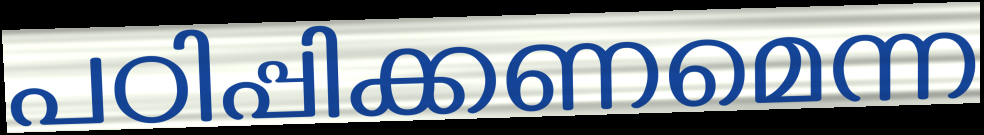
പഠിപ്പിക്കണമെന്ന